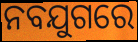
ନବଯୁଗରେ